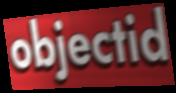
objectid